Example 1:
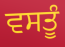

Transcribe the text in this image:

ਵਸਤੂੰ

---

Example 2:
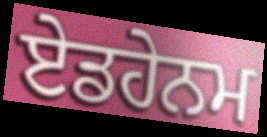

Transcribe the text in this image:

ਏਡਹੇਨਮ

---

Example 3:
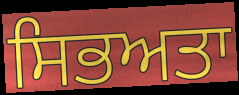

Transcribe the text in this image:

ਸਿਭਅਤਾ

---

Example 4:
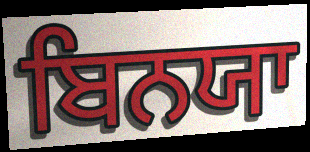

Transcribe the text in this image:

ਬਿਨਯਾ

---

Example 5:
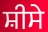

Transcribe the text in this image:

ਸ਼ੀਸੇ